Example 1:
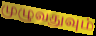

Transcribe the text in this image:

முழுவதுவும்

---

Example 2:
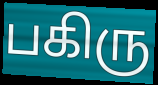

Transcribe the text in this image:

பகிரு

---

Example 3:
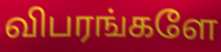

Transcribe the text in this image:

விபரங்களே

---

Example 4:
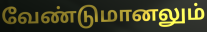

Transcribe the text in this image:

வேண்டுமானலும்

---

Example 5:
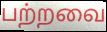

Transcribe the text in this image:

பற்றவை